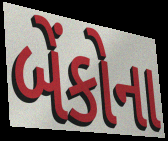
બેંકોના